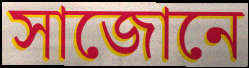
সাজোনে